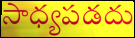
సాధ్యపడదు